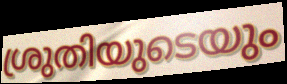
ശ്രുതിയുടെയും